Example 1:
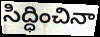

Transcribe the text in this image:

సిద్ధించినా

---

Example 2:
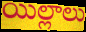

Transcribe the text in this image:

యిల్లాలు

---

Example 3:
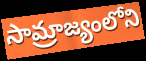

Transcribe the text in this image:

సామ్రాజ్యంలోని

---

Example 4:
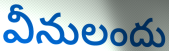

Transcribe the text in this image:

వీనులందు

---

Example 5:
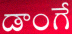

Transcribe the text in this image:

డాంగే